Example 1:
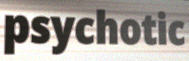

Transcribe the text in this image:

psychotic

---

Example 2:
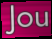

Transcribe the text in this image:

Jou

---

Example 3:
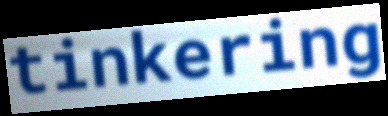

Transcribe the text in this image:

tinkering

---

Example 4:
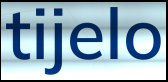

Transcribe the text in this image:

tijelo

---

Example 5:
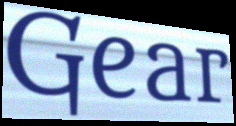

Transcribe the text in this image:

Gear